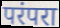
परंपरा